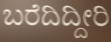
ಬರೆದಿದ್ದೀರಿ